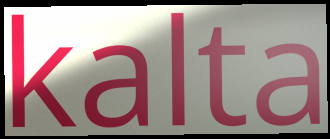
kalta